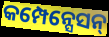
କମ୍ପେନ୍ସେସନ୍